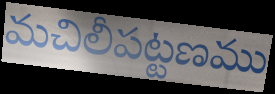
మచిలీపట్టణము